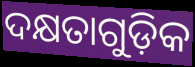
ଦକ୍ଷତାଗୁଡ଼ିକ